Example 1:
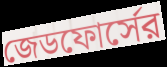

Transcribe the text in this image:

জেডফোর্সের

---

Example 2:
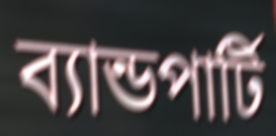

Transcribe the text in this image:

ব্যান্ডপার্টি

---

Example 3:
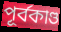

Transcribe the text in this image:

পূর্বকাণ্ড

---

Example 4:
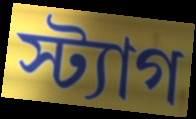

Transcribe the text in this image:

স্ট্যাগ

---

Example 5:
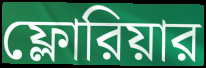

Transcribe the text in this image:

ফ্লোরিয়ার